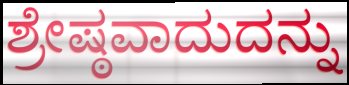
ಶ್ರೇಷ್ಠವಾದುದನ್ನು